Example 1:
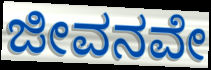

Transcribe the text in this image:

ಜೀವನವೇ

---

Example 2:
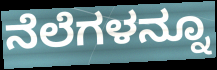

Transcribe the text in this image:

ನೆಲೆಗಳನ್ನೂ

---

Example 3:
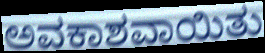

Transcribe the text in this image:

ಅವಕಾಶವಾಯಿತು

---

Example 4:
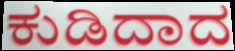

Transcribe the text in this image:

ಕುಡಿದಾದ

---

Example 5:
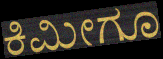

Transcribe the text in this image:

ಕಿಮೀಗೂ